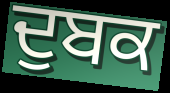
ਦੁਬਕ